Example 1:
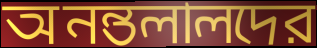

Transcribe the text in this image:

অনন্তলালদের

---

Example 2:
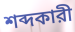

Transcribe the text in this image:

শব্দকারী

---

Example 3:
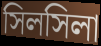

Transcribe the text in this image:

সিলসিলা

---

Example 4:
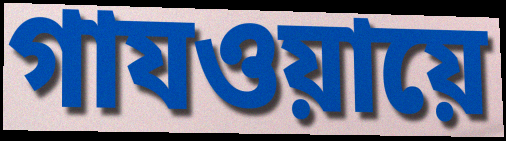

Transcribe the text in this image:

গাযওয়ায়ে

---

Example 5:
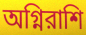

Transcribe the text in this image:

অগ্নিরাশি